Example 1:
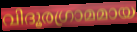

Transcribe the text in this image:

വിദൂരഗ്രാമമായ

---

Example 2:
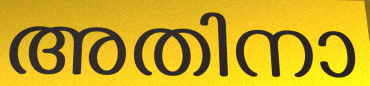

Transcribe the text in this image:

അതിനാ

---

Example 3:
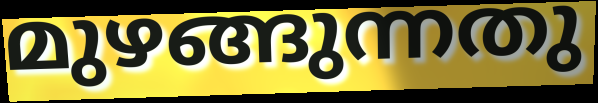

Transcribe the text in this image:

മുഴങ്ങുന്നതു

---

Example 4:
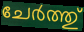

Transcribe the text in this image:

ചേർത്തു്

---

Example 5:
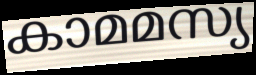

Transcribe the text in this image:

കാമമസ്യ